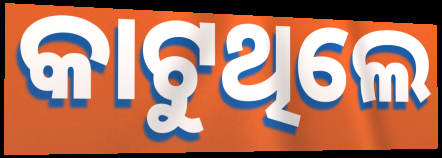
କାଟୁଥିଲେ